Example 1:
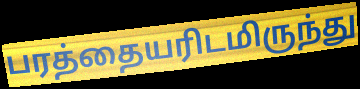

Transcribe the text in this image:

பரத்தையரிடமிருந்து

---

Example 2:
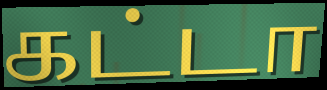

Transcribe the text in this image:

கட்டா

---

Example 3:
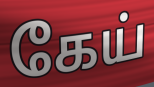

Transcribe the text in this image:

கேய்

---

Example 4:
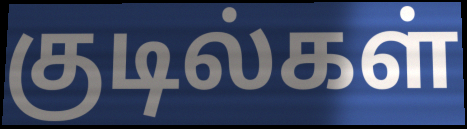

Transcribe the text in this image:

குடில்கள்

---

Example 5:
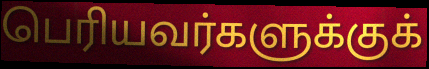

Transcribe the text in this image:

பெரியவர்களுக்குக்